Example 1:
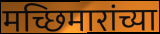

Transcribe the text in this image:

मच्छिमारांच्या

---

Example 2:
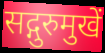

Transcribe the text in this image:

सद्गुरुमुखें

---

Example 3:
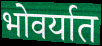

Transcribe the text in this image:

भोवर्यात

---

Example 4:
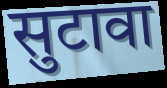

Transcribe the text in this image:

सुटावा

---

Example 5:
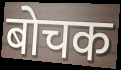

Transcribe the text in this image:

बोचक